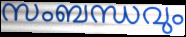
സംബന്ധവും